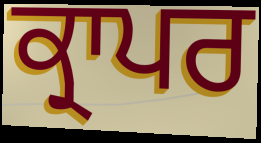
ਕ੍ਰਾਪਰ